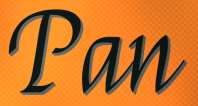
Pan